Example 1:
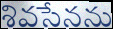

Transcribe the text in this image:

శివసేనను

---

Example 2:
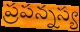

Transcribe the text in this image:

ప్రపన్నస్య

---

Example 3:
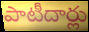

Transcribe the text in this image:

పాటీదార్లు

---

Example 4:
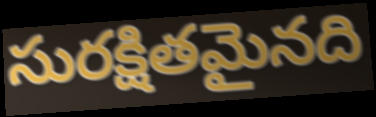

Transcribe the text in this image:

సురక్షితమైనది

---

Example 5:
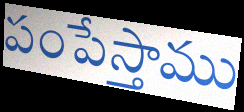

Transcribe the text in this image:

పంపేస్తాము